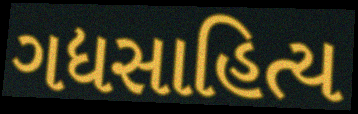
ગદ્યસાહિત્ય